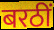
बरठीं